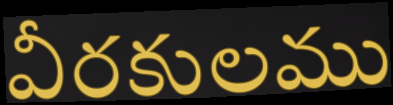
వీరకులము